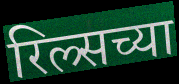
रिल्सच्या